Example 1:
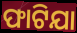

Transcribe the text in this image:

ଫାଟିଯା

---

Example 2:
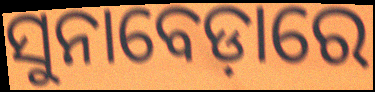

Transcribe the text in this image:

ସୁନାବେଡ଼ାରେ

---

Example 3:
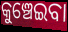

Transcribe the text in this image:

କୁଞ୍ଚେଇବା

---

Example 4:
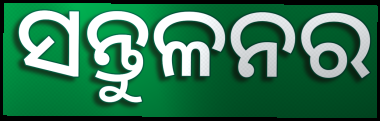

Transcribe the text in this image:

ସନ୍ତୁଳନର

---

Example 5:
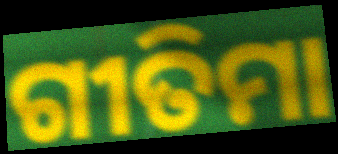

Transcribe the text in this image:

ଗୀତିମା